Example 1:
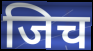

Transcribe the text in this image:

जिच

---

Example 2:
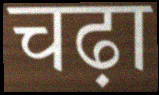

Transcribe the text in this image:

चढ़ा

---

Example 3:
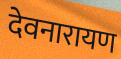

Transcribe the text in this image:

देवनारायण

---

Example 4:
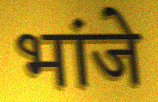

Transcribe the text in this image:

भांजे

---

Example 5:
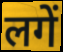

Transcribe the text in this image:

लगें